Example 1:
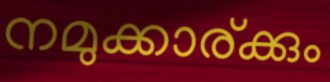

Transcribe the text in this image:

നമുക്കാര്ക്കും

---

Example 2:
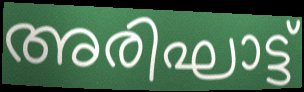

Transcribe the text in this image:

അരിഘാട്ട്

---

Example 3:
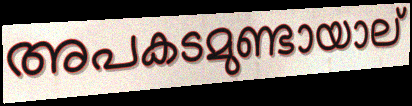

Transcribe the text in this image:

അപകടമുണ്ടായാല്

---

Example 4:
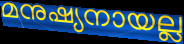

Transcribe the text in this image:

മനുഷ്യനായല്ല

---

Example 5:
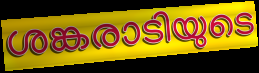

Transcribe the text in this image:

ശങ്കരാടിയുടെ